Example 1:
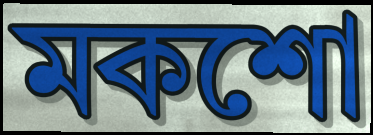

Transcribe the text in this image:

মকশো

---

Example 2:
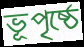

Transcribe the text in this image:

ভূপৃষ্ঠে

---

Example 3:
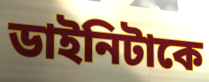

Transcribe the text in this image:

ডাইনিটাকে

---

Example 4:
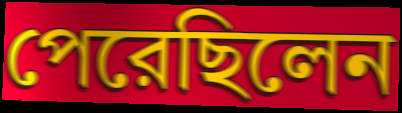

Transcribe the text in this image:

পেরেছিলেন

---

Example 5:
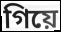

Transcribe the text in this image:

গিয়ে